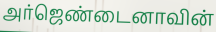
அர்ஜெண்டைனாவின்